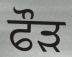
ਫੌਡ਼